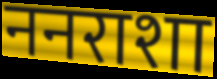
ननराशा